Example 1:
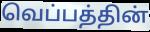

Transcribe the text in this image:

வெப்பத்தின்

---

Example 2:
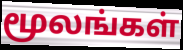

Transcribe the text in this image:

மூலங்கள்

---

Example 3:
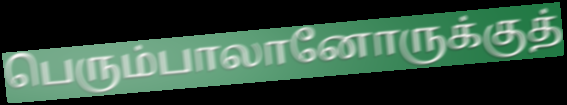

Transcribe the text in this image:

பெரும்பாலானோருக்குத்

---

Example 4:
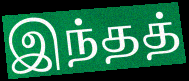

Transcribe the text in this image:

இந்தத்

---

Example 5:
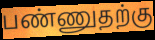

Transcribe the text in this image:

பண்ணுதற்கு